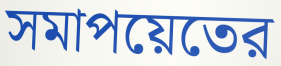
সমাপয়েতের